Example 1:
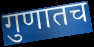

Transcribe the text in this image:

गुणातच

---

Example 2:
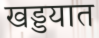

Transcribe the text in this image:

खड्डयात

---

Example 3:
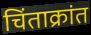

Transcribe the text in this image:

चिंताक्रांत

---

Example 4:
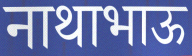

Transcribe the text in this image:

नाथाभाऊ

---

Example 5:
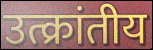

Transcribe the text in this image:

उत्क्रांतीय